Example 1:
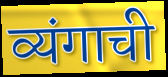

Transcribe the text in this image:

व्यंगाची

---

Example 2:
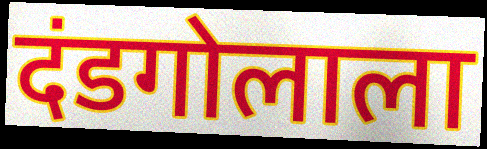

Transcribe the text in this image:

दंडगोलाला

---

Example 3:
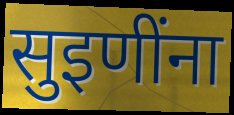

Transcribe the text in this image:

सुइणींना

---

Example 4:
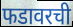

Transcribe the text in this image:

फडावरची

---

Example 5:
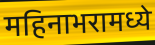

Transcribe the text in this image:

महिनाभरामध्ये